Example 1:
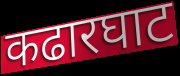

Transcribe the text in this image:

कढारघाट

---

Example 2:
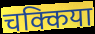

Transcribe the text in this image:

चक्किया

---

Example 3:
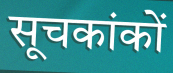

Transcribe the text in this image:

सूचकांकों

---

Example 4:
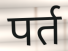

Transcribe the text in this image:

पर्त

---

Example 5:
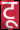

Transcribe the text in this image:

टू